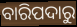
ବାରିପଦାରୁ